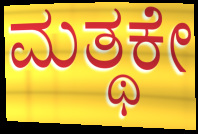
ಮತ್ಥಕೇ